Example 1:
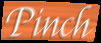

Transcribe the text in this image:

Pinch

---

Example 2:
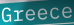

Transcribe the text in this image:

Greece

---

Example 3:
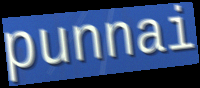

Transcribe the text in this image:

punnai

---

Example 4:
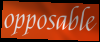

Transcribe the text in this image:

opposable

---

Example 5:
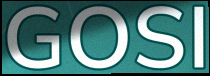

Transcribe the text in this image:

GOSI